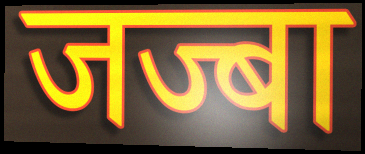
जज्बा